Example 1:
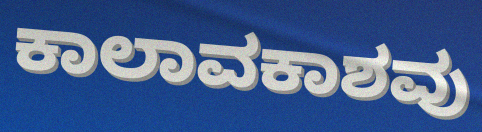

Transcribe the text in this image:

ಕಾಲಾವಕಾಶವು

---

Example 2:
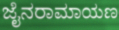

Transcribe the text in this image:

ಜೈನರಾಮಾಯಣ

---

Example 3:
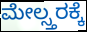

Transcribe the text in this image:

ಮೇಲ್ಸ್ತರಕ್ಕೆ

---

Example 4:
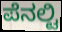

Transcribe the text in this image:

ಪೆನಲ್ಟಿ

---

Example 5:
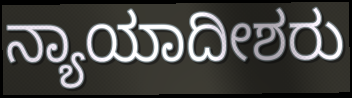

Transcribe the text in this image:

ನ್ಯಾಯಾದೀಶರು